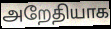
அறேதியாக